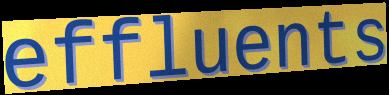
effluents